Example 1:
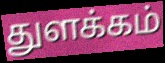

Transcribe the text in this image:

துளக்கம்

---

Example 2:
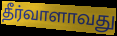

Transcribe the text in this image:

தீர்வாளாவது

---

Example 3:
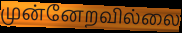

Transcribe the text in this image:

முன்னேறவில்லை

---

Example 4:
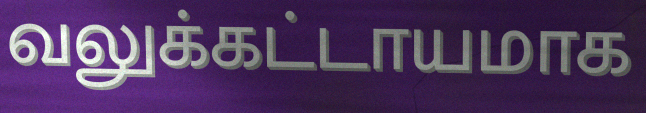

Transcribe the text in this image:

வலுக்கட்டாயமாக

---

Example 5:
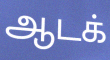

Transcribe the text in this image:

ஆடக்